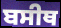
ਬਸੀਥ